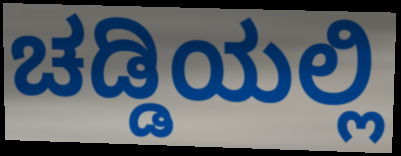
ಚಡ್ಡಿಯಲ್ಲಿ